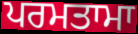
ਪਰਮਤਾਮਾ